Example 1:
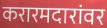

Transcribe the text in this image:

करारमदारांवर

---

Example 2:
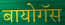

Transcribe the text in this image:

बायोगॅस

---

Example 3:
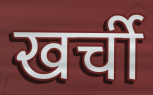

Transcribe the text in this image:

खर्ची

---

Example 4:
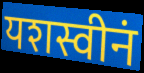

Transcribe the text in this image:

यशस्वीनं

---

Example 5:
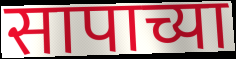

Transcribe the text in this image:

सापाच्या